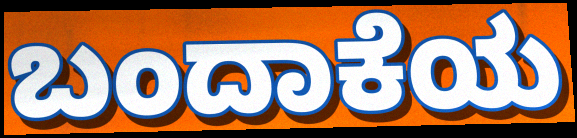
ಬಂದಾಕೆಯ